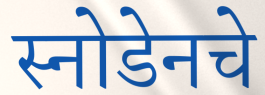
स्नोडेनचे